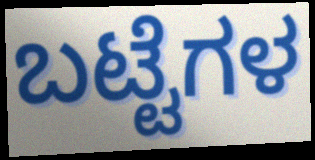
ಬಟ್ಟೆಗಳ